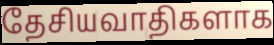
தேசியவாதிகளாக